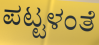
ಪಟ್ಟಳಂತೆ